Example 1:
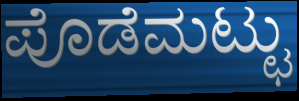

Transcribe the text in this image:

ಪೊಡೆಮಟ್ಟು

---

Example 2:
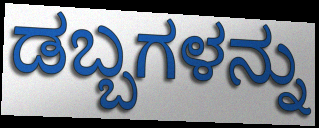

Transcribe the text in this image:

ಡಬ್ಬಗಳನ್ನು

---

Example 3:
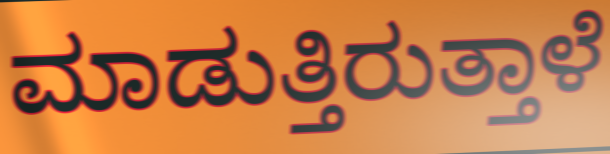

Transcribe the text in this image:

ಮಾಡುತ್ತಿರುತ್ತಾಳೆ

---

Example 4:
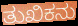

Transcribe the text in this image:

ತುಖಿಕನು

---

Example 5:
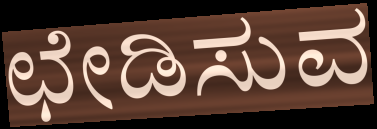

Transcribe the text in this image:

ಛೇಡಿಸುವ